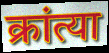
क्रांत्या